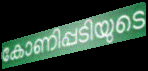
കോണിപ്പടിയുടെ